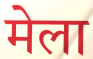
मेला